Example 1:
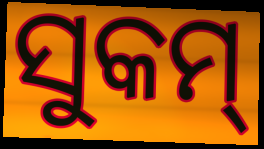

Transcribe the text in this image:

ସୁକମ୍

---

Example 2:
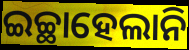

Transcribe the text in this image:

ଇଚ୍ଛାହେଲାନି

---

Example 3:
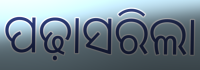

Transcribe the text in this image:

ପଢ଼ାସରିଲା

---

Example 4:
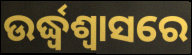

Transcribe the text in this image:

ଉର୍ଦ୍ଧ୍ଵଶ୍ୱାସରେ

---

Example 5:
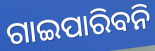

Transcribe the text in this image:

ଗାଇପାରିବନି